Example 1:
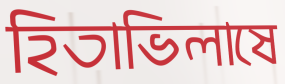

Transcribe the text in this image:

হিতাভিলাষে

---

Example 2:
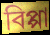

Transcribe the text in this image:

বিপ্পা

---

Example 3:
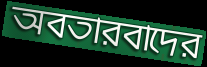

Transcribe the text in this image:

অবতারবাদের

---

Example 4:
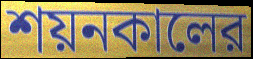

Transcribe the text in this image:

শয়নকালের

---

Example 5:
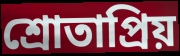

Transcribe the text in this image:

শ্রোতাপ্রিয়